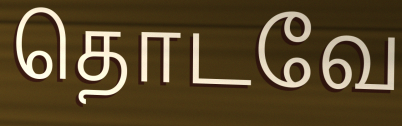
தொடவே